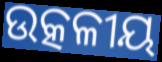
ଉତ୍କଳୀୟ